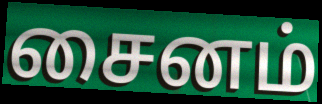
சைனம்